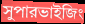
সুপারভাইজিং